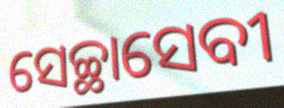
ସେଚ୍ଛାସେବୀ